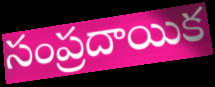
సంప్రదాయిక